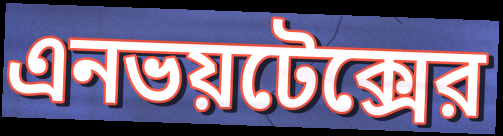
এনভয়টেক্সের